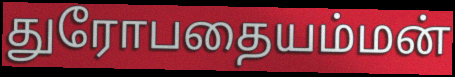
துரோபதையம்மன்